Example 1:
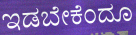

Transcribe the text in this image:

ಇಡಬೇಕೆಂದೂ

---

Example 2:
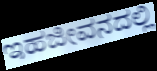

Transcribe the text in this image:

ಇಹಜೀವನದಲ್ಲಿ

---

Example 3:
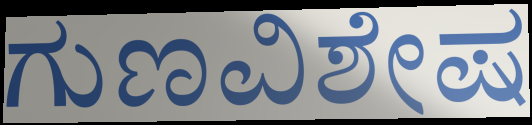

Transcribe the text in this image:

ಗುಣವಿಶೇಷ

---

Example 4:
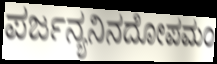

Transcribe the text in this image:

ಪರ್ಜನ್ಯನಿನದೋಪಮಂ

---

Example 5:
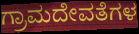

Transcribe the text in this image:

ಗ್ರಾಮದೇವತೆಗಳ